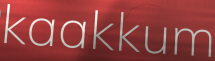
kaakkum